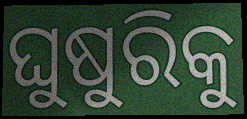
ଘୁଷୁରିକୁ